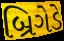
બ્રિગેડે